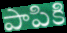
పాపికి